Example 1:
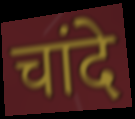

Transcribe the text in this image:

चांदे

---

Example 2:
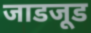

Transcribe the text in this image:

जाडजूड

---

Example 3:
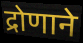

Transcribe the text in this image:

द्रोणाने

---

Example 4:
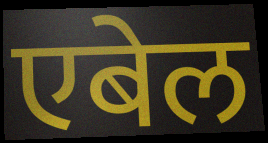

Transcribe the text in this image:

एबेल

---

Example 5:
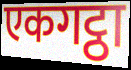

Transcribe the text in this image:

एकगट्ठा